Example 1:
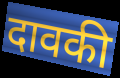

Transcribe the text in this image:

दावकी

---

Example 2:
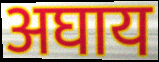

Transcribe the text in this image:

अघाय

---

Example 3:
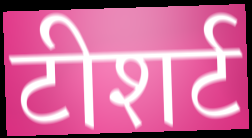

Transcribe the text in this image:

टीशर्ट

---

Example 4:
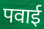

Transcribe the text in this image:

पवाई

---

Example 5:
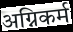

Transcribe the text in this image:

अग्निकर्म